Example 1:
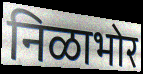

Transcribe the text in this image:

निळाभोर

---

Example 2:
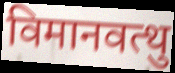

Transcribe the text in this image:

विमानवत्थु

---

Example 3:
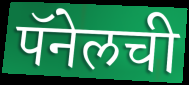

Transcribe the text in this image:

पॅनेलची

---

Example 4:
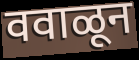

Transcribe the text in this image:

ववाळून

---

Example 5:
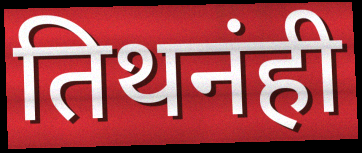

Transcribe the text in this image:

तिथनंही